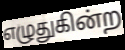
எழுதுகின்ற